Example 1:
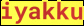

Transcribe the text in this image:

iyakku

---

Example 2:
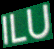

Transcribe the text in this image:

ILU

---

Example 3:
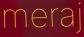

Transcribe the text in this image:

meraj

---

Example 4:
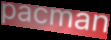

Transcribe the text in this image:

pacman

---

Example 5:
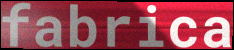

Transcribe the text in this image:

fabrica